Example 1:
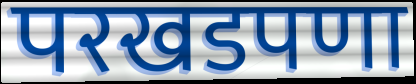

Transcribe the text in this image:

परखडपणा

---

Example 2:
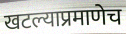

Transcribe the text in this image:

खटल्याप्रमाणेच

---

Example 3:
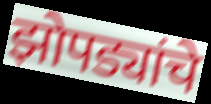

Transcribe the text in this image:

झोपड्यांचे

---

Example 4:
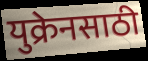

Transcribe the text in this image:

युक्रेनसाठी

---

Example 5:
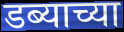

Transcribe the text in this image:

डब्याच्या